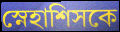
স্নেহাশিসকে